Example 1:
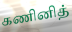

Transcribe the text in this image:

கணினித்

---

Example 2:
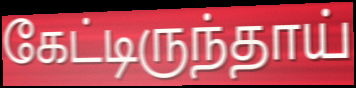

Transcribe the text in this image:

கேட்டிருந்தாய்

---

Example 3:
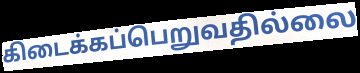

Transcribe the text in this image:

கிடைக்கப்பெறுவதில்லை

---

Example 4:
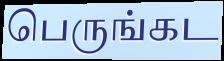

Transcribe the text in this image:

பெருங்கட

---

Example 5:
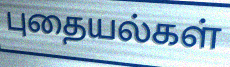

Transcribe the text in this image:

புதையல்கள்